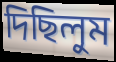
দিছিলুম